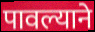
पावल्याने